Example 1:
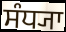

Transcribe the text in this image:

ਸੰਧ੍ਯਾ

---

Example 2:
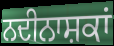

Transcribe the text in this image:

ਨਦੀਨਾਸ਼ਕਾਂ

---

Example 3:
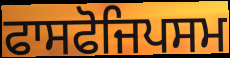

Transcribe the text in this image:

ਫਾਸਫੋਜਿਪਸਮ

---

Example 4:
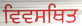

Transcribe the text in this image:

ਵਿਵਸਥਿਤ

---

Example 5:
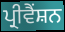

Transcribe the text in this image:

ਪ੍ਰੀਵੈਂਸ਼ਨ